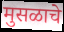
मुसळाचे